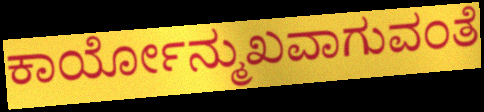
ಕಾರ್ಯೋನ್ಮುಖವಾಗುವಂತೆ